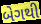
બેગથી